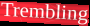
Trembling